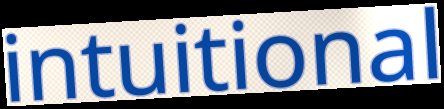
intuitional